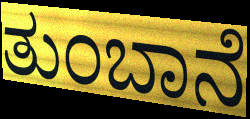
ತುಂಬಾನೆ